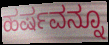
ಹರ್ಷವನ್ನೂ